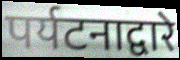
पर्यटनाद्वारे